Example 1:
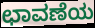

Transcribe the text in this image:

ಛಾವಣೆಯ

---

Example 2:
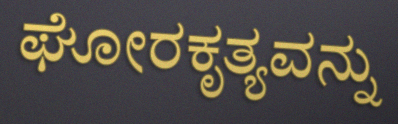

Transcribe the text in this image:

ಘೋರಕೃತ್ಯವನ್ನು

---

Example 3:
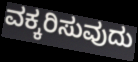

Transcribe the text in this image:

ವಕ್ಕರಿಸುವುದು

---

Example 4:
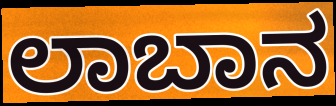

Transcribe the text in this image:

ಲಾಬಾನ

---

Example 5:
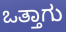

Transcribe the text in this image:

ಒತ್ತಾಗು